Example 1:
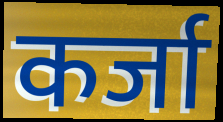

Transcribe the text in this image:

कर्जा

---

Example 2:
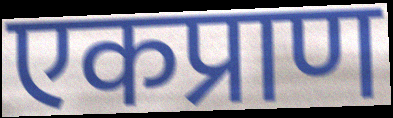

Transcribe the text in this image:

एकप्राण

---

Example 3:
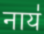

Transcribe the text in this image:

नाय॑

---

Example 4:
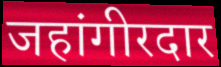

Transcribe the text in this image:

जहांगीरदार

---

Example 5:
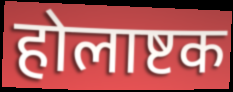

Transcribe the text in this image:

होलाष्टक